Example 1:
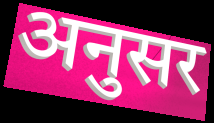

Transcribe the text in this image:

अनुसर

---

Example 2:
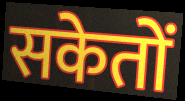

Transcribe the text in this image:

सकेतों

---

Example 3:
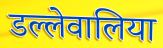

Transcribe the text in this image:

डल्लेवालिया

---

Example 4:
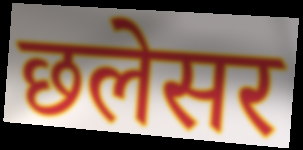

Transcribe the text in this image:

छलेसर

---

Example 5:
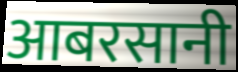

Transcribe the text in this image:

आबरसानी